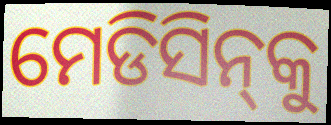
ମେଡିସିନ୍‌କୁ